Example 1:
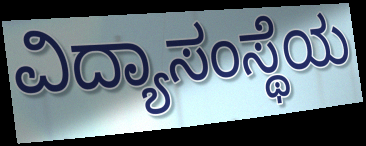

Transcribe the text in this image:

ವಿದ್ಯಾಸಂಸ್ಥೆಯ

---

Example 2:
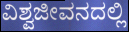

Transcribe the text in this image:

ವಿಶ್ವಜೀವನದಲ್ಲಿ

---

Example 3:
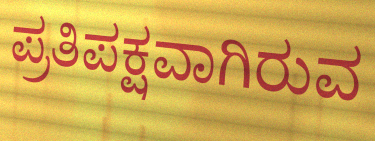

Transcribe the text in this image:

ಪ್ರತಿಪಕ್ಷವಾಗಿರುವ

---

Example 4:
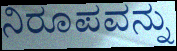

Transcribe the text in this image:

ನಿರೂಪವನ್ನು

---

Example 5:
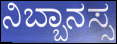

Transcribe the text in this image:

ನಿಬ್ಬಾನಸ್ಸ